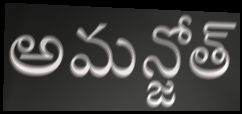
అమన్జోత్